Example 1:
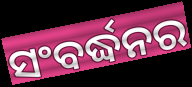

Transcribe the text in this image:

ସଂବର୍ଦ୍ଧନର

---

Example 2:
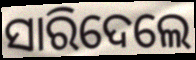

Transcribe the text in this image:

ସାରିଦେଲେ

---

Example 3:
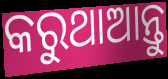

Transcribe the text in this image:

କରୁଥାଆନ୍ତୁ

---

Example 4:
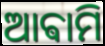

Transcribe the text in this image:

ଆଵାମି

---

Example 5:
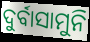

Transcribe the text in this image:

ଦୁର୍ବାସାମୁନି